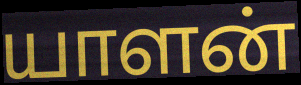
யாளன்